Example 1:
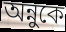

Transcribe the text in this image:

অন্নুকে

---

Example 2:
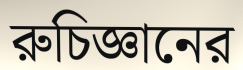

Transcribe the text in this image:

রুচিজ্ঞানের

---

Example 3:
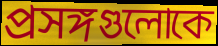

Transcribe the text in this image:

প্রসঙ্গগুলোকে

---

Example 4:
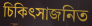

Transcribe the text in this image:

চিকিৎসাজনিত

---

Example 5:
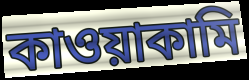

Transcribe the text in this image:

কাওয়াকামি